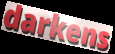
darkens